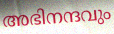
അഭിനന്ദവും